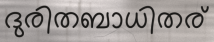
ദുരിതബാധിതര്